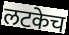
लटकेच